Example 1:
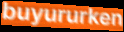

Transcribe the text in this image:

buyururken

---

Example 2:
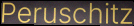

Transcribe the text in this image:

Peruschitz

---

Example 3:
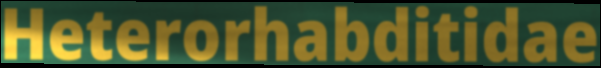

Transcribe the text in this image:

Heterorhabditidae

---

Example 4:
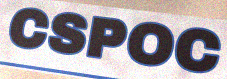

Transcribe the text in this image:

CSPOC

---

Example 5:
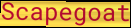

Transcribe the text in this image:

Scapegoat